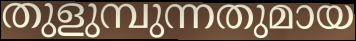
തുളുമ്പുന്നതുമായ